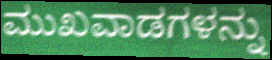
ಮುಖವಾಡಗಳನ್ನು